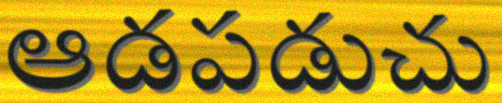
ఆడపడుచు